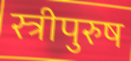
स्त्रीपुरुष